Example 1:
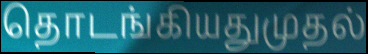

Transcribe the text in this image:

தொடங்கியதுமுதல்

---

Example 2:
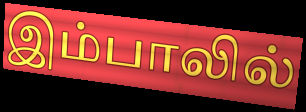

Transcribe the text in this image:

இம்பாலில்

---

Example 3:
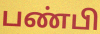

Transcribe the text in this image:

பண்பி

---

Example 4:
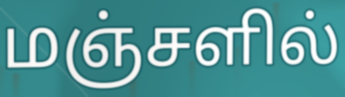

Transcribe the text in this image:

மஞ்சளில்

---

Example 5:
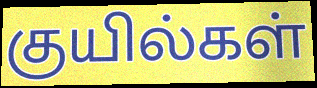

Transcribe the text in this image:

குயில்கள்